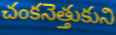
చంకనెత్తుకుని